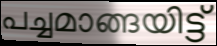
പച്ചമാങ്ങയിട്ട്